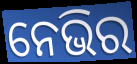
ନେଭିର